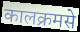
कालक्रमसे